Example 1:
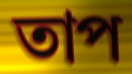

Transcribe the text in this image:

তাপ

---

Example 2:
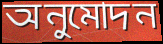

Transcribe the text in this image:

অনুমোদন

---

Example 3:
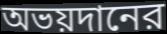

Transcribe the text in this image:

অভয়দানের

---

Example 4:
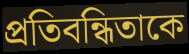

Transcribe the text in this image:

প্রতিবন্ধিতাকে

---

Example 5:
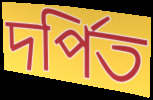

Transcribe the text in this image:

দর্পিত